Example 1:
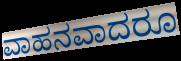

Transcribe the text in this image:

ವಾಹನವಾದರೂ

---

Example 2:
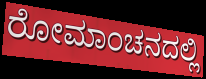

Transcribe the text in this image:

ರೋಮಾಂಚನದಲ್ಲಿ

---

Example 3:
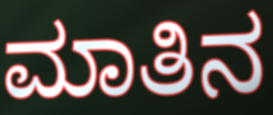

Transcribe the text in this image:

ಮಾತಿನ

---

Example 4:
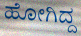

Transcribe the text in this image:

ಹೋಗಿದ್ದ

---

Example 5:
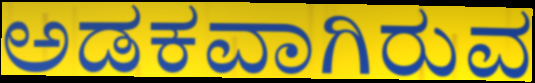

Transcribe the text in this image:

ಅಡಕವಾಗಿರುವ